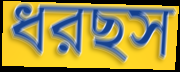
ধরছস